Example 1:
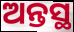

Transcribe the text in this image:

ଅନ୍ତସ୍ଥ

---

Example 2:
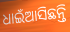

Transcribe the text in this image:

ଧାଇଁଆସିଛନ୍ତି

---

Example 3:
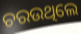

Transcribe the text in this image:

ଚରଉଥିଲେ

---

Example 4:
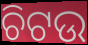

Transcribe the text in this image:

ଚିଟଉ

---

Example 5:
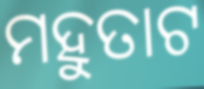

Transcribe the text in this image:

ମହୁତାଟ